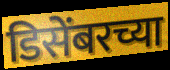
डिसेंबरच्या